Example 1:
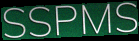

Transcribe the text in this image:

SSPMS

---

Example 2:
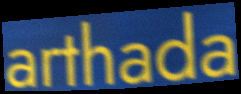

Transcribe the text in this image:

arthada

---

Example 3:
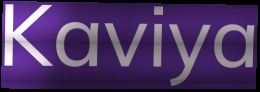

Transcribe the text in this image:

Kaviya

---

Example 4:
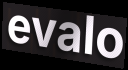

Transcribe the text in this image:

evalo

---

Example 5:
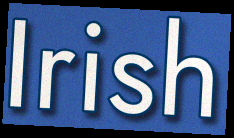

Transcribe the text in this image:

Irish